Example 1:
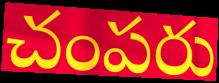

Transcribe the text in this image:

చంపరు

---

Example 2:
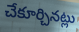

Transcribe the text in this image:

చేకూర్చినట్లు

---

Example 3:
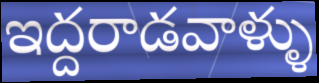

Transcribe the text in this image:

ఇద్దరాడవాళ్ళు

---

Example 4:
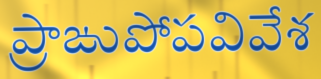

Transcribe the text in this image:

ప్రాఙుపోపవివేశ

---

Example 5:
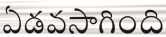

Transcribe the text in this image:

ఏడవసాగింది